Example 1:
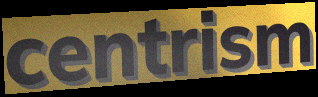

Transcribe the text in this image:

centrism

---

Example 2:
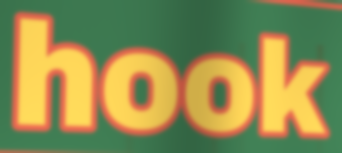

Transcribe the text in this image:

hook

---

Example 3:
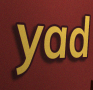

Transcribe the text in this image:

yad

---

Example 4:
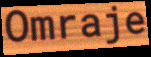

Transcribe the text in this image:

Omraje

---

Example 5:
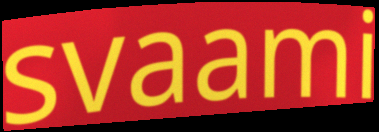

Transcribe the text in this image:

svaami